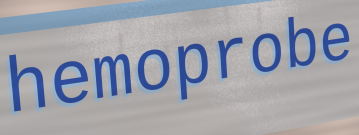
hemoprobe